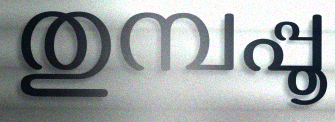
തുമ്പപ്പൂ